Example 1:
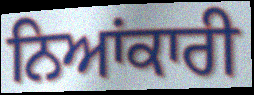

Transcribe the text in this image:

ਨਿਆਂਕਾਰੀ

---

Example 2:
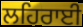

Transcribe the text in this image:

ਲਹਿਰਾਈ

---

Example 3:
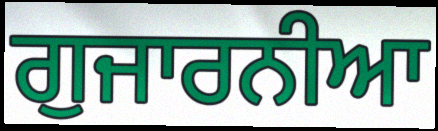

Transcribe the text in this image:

ਗੁਜਾਰਨੀਆ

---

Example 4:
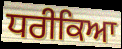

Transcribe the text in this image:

ਧਰੀਕਿਆ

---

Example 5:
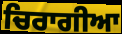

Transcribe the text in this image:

ਚਿਰਾਗੀਆ